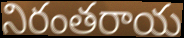
నిరంతరాయ